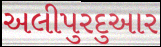
અલીપુરદુઆર